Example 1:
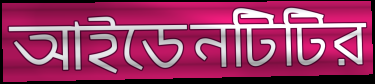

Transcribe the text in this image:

আইডেনটিটির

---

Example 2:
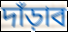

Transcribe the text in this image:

দাঁড়াব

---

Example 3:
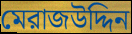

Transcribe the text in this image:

মেরাজউদ্দিন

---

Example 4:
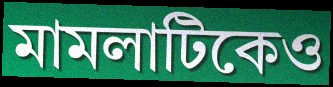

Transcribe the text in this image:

মামলাটিকেও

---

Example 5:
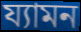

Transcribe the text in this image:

য্যামন